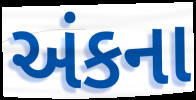
અંકના